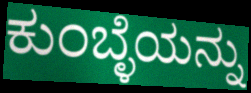
ಕುಂಬ್ಳೆಯನ್ನು